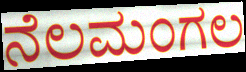
ನೆಲಮಂಗಲ